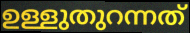
ഉള്ളുതുറന്നത്